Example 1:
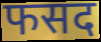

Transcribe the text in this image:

फसद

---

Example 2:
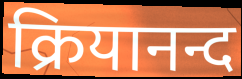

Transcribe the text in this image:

क्रियानन्द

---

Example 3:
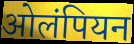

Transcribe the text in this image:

ओलंपियन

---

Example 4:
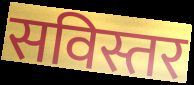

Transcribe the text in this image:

सविस्तर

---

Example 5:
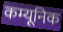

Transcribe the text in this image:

कम्यूनिक